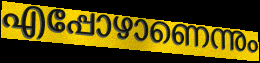
എപ്പോഴാണെന്നും